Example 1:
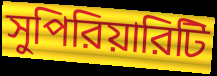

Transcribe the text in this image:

সুপিরিয়ারিটি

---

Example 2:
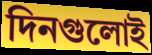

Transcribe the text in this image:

দিনগুলোই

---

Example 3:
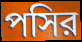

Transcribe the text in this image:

পসির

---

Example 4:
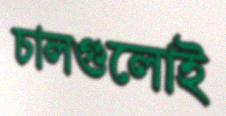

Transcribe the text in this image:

চালগুলোই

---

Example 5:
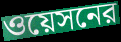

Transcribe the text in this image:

ওয়েসনের